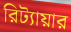
রিট্যায়ার